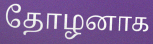
தோழனாக